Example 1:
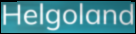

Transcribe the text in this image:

Helgoland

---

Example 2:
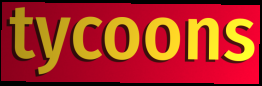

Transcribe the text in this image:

tycoons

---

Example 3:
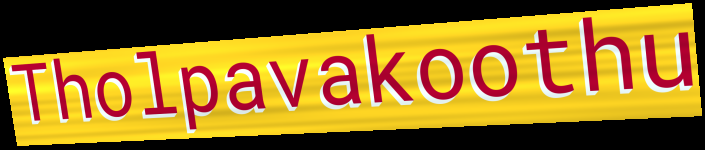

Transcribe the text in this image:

Tholpavakoothu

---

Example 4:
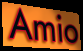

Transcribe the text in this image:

Amio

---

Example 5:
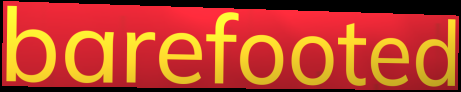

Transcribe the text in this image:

barefooted